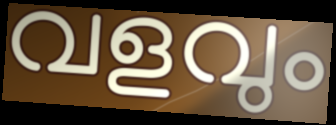
വളവും